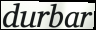
durbar